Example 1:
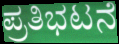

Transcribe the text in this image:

ಪ್ರತಿಭಟನೆ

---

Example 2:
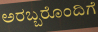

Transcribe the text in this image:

ಅರಬ್ಬರೊಂದಿಗೆ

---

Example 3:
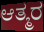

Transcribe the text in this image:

ಆತ್ಮರ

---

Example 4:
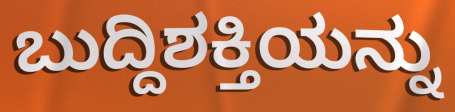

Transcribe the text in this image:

ಬುದ್ದಿಶಕ್ತಿಯನ್ನು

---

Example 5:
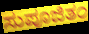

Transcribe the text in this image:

ಸುಪೂಜಿತಂ